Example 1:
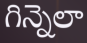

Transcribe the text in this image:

గిన్నెలా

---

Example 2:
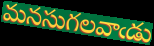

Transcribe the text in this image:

మనసుగలవాఁడు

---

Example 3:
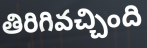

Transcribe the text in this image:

తిరిగివచ్చింది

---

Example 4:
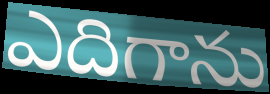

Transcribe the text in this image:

ఎదిగాను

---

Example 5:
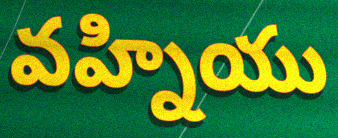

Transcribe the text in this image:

వహ్నియు